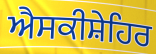
ਐਸਕੀਸ਼ੇਹਿਰ